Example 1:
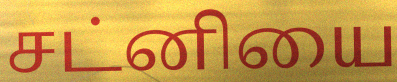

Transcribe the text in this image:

சட்னியை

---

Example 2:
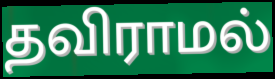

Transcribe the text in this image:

தவிராமல்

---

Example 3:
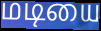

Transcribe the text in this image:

மடியை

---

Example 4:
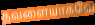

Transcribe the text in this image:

தவளையாகவே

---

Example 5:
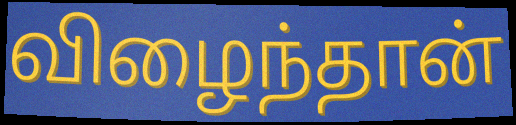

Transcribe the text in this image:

விழைந்தான்